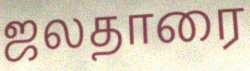
ஜலதாரை